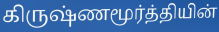
கிருஷ்ணமூர்த்தியின்